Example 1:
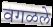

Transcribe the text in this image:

वगळले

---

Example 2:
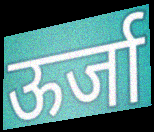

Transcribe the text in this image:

ऊर्जा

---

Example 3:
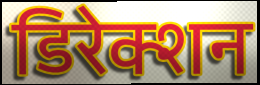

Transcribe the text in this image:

डिरेक्शन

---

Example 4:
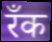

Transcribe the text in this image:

रँक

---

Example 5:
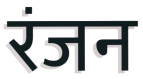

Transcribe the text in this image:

रंजन